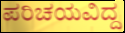
ಪರಿಚಯವಿದ್ದ